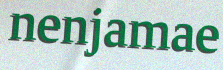
nenjamae